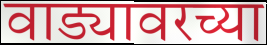
वाड्यावरच्या